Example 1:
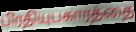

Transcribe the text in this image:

பிரதியுபகாரத்தை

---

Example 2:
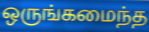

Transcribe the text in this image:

ஒருங்கமைந்த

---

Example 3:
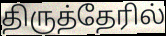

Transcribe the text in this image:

திருத்தேரில்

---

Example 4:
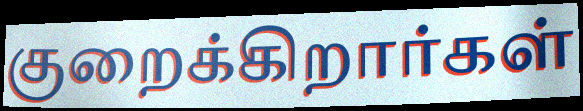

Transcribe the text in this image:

குறைக்கிறார்கள்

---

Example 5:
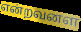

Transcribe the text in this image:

என்றவனள